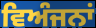
ਵਿਅੰਜਨਾਂ